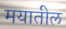
मयातील